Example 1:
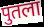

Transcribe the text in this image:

पुतला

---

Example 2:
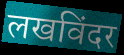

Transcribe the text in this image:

लखविंदर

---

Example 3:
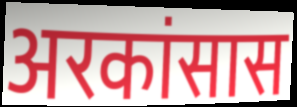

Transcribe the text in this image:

अरकांसास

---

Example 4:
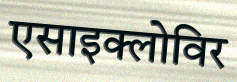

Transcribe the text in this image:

एसाइक्लोविर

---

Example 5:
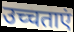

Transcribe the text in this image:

उच्चताएं